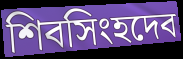
শিবসিংহদেব